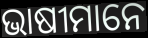
ଭାଷୀମାନେ